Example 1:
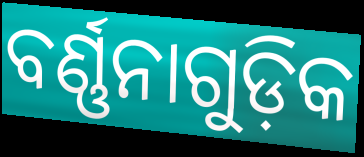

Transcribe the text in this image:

ବର୍ଣ୍ଣନାଗୁଡ଼ିକ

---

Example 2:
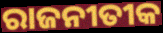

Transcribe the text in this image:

ରାଜନୀତୀକ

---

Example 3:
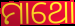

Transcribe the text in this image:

ମାଥୋ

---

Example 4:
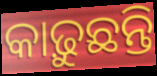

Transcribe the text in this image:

କାଢ଼ୁଛନ୍ତି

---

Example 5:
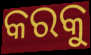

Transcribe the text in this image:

କରକୁ